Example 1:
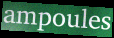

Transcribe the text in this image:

ampoules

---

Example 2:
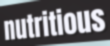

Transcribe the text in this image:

nutritious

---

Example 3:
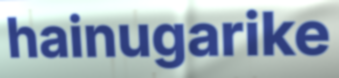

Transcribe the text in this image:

hainugarike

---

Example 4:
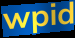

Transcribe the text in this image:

wpid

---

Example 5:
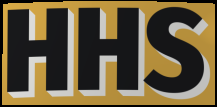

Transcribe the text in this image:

HHS